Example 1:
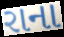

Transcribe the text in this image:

રાના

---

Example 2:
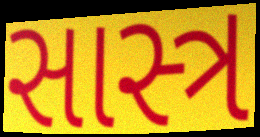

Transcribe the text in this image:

સાસ્ત્ર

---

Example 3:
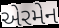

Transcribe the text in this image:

એરમેન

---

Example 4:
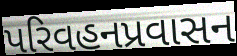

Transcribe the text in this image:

પરિવહનપ્રવાસન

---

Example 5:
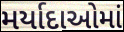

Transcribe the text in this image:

મર્યાદાઓમાં